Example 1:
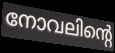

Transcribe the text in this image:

നോവലിന്റെ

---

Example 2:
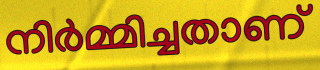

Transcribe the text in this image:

നിർമ്മിച്ചതാണ്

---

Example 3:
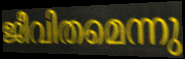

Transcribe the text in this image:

ജീവിതമെന്നു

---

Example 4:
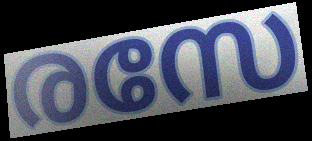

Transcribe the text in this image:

രസേ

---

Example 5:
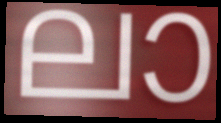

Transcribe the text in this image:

ലാ